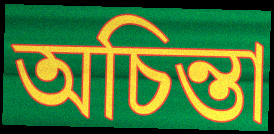
অচিন্তা